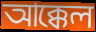
আক্কেল